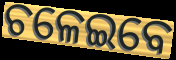
ଚଳେଇବେ